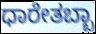
ಧಾರೇತಬ್ಬಾ